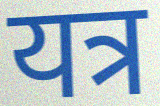
यत्र